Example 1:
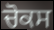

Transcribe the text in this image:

ਚੋਕਸ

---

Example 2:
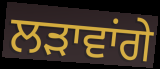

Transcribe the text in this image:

ਲੜਾਵਾਂਗੇ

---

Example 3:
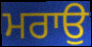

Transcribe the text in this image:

ਮਰਾਉ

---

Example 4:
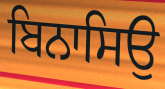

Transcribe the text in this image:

ਬਿਨਾਸਿਉ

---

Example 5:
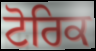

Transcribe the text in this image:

ਟੋਰਿਕ